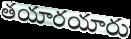
తయారయారు